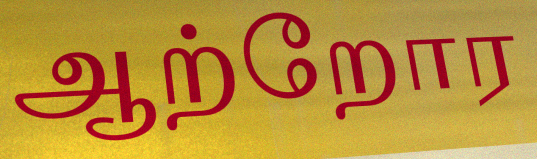
ஆற்றோர